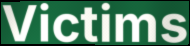
Victims